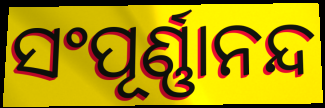
ସଂପୂର୍ଣ୍ଣାନନ୍ଦ